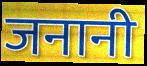
जनानी